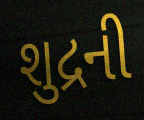
શુદ્રની